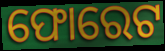
ଫୋରେଟ